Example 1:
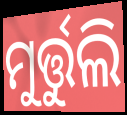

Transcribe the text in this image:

ମୁର୍ତ୍ତୁଲି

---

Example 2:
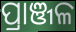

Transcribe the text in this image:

ପ୍ରାଞ୍ଜଳ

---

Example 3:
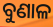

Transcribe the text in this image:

ବୁଣାଳ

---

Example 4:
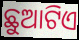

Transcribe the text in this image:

ଛୁଆଟିଏ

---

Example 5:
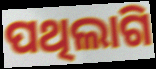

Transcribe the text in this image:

ପଥିଲାଗି